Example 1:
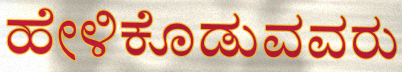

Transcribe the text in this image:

ಹೇಳಿಕೊಡುವವರು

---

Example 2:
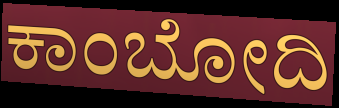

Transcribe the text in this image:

ಕಾಂಬೋದಿ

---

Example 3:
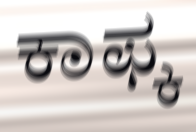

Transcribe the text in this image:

ಕಾಫ್ಕ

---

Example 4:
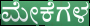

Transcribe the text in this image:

ಮೇಕೆಗಳ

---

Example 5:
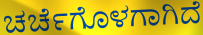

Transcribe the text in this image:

ಚರ್ಚೆಗೊಳಗಾಗಿದೆ